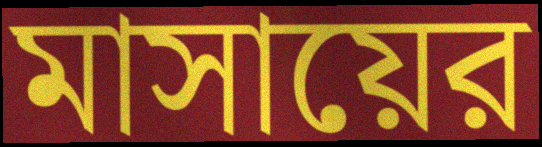
মাসায়ের